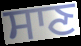
ਸਾਣ